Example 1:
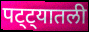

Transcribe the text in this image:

पट्ट्यातली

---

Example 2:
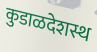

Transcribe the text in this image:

कुडाळदेशस्थ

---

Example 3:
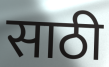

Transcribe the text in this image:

साठी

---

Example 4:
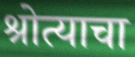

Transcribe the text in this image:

श्रोत्याचा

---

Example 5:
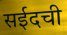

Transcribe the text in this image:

सईदची